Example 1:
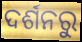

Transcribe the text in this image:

ଦର୍ଶନରୁ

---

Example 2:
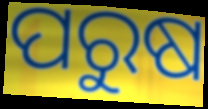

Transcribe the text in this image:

ପରୁଷ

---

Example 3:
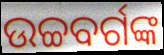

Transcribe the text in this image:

ଉଚ୍ଚବର୍ଗଙ୍କ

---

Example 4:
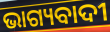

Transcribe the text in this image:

ଭାଗ୍ୟବାଦୀ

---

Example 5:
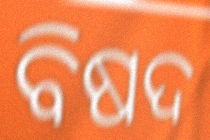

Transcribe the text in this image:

ବିଷଦ